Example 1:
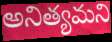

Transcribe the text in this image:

అనిత్యమని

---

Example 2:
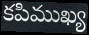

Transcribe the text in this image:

కపిముఖ్య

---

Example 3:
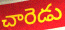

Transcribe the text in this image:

చారెడు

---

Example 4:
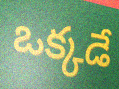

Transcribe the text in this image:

ఒక్కడే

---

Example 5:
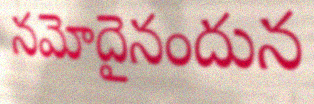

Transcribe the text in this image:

నమోదైనందున